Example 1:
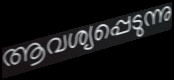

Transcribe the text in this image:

ആവശ്യപ്പെടുന്നു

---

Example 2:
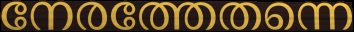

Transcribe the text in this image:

നേരത്തേതന്നെ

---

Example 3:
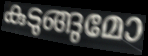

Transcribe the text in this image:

കുടുങ്ങുമോ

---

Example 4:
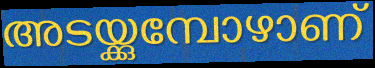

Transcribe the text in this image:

അടയ്ക്കുമ്പോഴാണ്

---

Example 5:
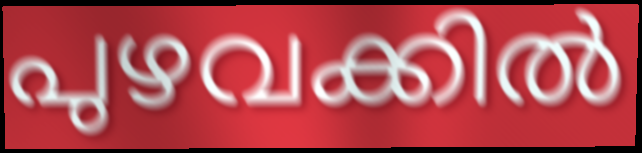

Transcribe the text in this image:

പുഴവക്കിൽ